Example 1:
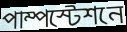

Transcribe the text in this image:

পাম্পস্টেশনে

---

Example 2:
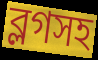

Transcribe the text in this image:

ব্লগসহ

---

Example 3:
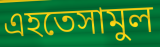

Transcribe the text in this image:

এহতেসামুল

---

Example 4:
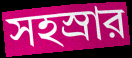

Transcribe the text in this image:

সহস্রার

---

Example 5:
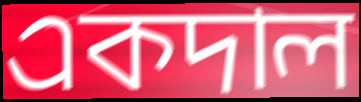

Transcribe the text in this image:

একদাল